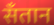
सँतान